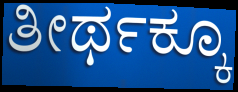
ತೀರ್ಥಕ್ಕೂ